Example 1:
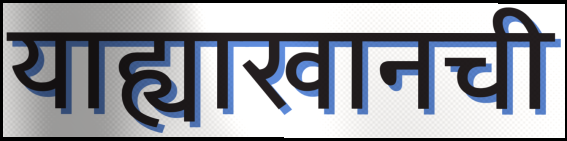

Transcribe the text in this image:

याह्याखानची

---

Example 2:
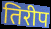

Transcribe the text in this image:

तिरीप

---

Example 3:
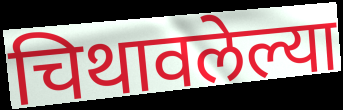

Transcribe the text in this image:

चिथावलेल्या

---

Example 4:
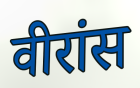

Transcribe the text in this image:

वीरांस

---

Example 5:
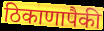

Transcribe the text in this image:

ठिकाणापैकी